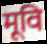
मूवि